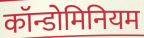
कॉन्डोमिनियम